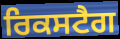
ਰਿਕਸਟੈਗ